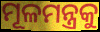
ମୂଳମନ୍ତ୍ରକୁ